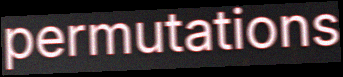
permutations